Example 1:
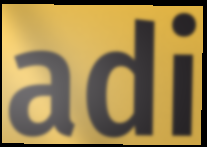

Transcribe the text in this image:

adi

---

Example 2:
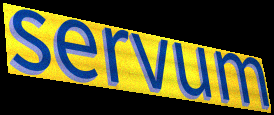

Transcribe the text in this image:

servum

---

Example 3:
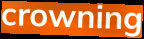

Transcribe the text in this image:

crowning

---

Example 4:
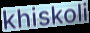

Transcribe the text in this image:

khiskoli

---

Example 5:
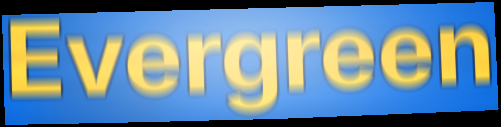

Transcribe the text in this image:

Evergreen